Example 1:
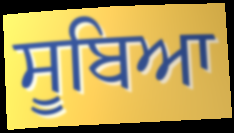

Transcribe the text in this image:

ਸੂਬਿਆ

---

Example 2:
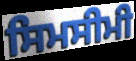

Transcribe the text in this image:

ਸਿਮਸੀਮੀ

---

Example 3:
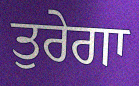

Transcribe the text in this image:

ਤੁਰੇਗਾ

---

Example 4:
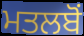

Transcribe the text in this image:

ਮਤਲਬੋਂ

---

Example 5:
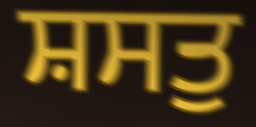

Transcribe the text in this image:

ਸ਼ਸਤੁ